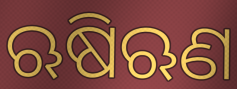
ଋଷିଋଣ